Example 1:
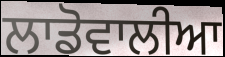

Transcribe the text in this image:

ਲਾਡੋਵਾਲੀਆ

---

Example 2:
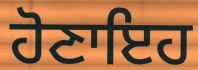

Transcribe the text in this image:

ਹੋਣਾਇਹ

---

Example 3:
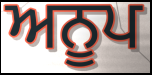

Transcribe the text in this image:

ਅਨੂਪ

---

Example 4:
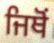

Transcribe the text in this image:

ਜਿਥੋਂ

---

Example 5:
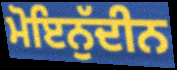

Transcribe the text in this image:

ਮੋਇਨੁੱਦੀਨ